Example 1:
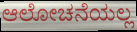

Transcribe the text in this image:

ಆಲೋಚನೆಯಲ್ಲ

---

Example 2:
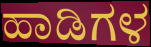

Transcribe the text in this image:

ಹಾಡಿಗಳ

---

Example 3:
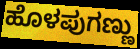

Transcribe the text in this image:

ಹೊಳಪುಗಣ್ಣು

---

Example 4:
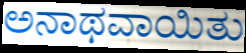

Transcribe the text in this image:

ಅನಾಥವಾಯಿತು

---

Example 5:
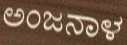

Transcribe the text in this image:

ಅಂಜನಾಳ